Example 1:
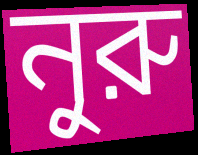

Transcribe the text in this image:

নুরু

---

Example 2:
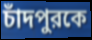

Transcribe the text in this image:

চাঁদপুরকে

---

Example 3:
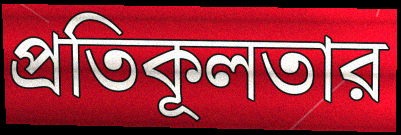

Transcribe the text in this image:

প্রতিকূলতার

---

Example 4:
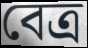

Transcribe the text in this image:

বেত্র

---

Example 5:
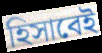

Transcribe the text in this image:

হিসাবেই